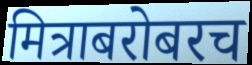
मित्राबरोबरच